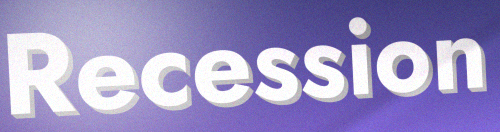
Recession